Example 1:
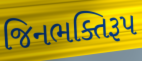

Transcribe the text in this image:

જિનભક્તિરૂપ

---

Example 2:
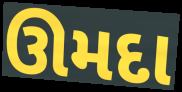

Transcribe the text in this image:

ઊમદા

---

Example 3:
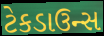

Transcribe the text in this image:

ટેકડાઉન્સ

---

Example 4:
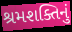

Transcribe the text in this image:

શ્રમશક્તિનું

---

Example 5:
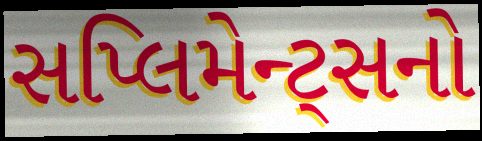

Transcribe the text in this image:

સપ્લિમેન્ટ્સનો